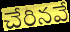
చేరినవే